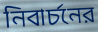
নিবার্চনের